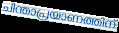
ചിന്താപ്രയാണത്തിന്